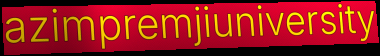
azimpremjiuniversity